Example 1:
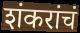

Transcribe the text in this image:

शंकरांचं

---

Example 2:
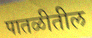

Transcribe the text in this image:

पातळीतील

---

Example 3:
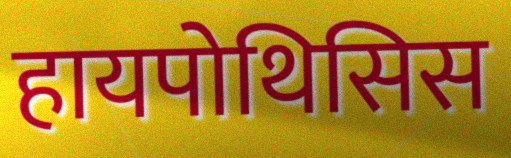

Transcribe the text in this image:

हायपोथिसिस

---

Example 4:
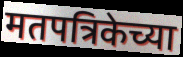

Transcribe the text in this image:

मतपत्रिकेच्या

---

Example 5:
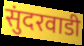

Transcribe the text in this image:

सुंदरवाडी